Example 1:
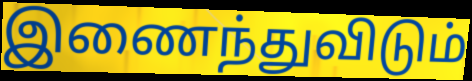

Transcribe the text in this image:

இணைந்துவிடும்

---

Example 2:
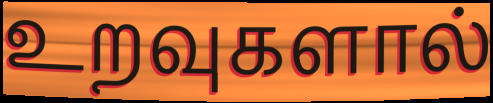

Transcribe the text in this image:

உறவுகளால்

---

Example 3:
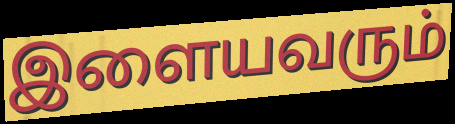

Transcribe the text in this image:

இளையவரும்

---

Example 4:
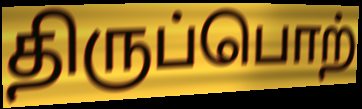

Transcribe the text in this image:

திருப்பொற்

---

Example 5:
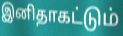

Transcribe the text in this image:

இனிதாகட்டும்